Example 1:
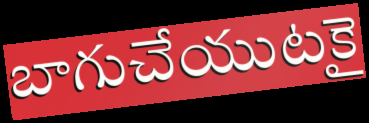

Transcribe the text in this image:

బాగుచేయుటకై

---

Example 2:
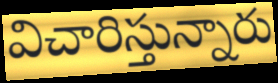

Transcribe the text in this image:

విచారిస్తున్నారు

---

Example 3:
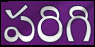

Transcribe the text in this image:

పరిగి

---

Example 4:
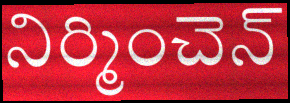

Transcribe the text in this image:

నిర్మించెన్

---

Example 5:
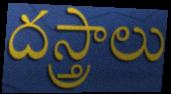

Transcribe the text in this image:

దస్త్రాలు